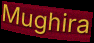
Mughira